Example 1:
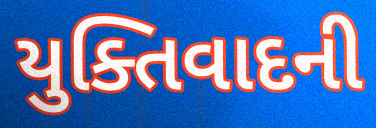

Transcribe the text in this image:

યુક્તિવાદની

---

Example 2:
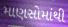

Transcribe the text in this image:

માણસોમાંથી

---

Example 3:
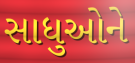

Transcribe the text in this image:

સાધુઓને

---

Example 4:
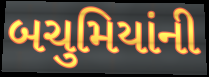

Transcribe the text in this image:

બચુમિયાંની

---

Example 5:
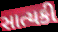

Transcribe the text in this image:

સાત્યકી